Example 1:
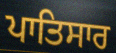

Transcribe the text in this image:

ਪਾਤਿਸਾਰ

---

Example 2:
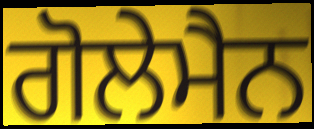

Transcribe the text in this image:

ਗੋਲੇਮੈਨ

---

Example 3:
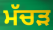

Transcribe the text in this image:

ਮੱਚੜ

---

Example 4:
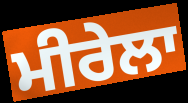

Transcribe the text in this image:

ਮੀਰੇਲਾ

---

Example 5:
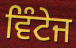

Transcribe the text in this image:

ਵਿੰਟੇਜ